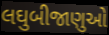
લઘુબીજાણુઓ